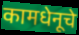
कामधेनूचे